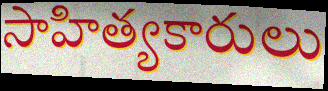
సాహిత్యకారులు